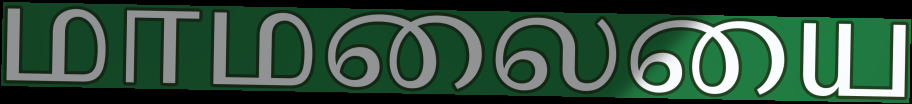
மாமலையை